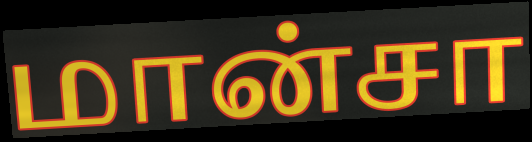
மான்சா